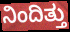
ನಿಂದಿತ್ತು